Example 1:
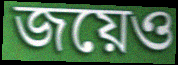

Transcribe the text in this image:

জয়েও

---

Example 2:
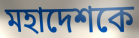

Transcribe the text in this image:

মহাদেশকে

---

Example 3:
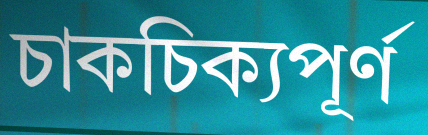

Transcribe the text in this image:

চাকচিক্যপূর্ণ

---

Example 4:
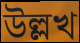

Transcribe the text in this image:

উল্লখ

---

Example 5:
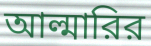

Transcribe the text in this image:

আল্মারির